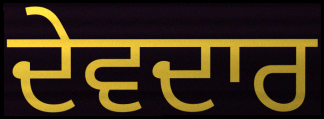
ਦੇਵਦਾਰ